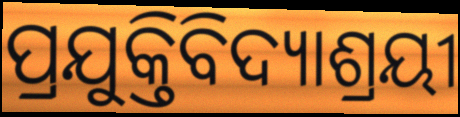
ପ୍ରଯୁକ୍ତିବିଦ୍ୟାଶ୍ରୟୀ